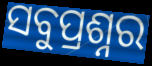
ସବୁପ୍ରଶ୍ନର